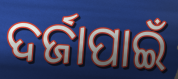
ଦର୍ଜାପାଇଁ